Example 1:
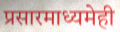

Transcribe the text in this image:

प्रसारमाध्यमेही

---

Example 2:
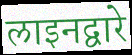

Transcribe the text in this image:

लाइनद्वारे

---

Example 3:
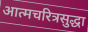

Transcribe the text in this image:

आत्मचरित्रसुद्धा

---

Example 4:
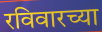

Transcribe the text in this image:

रविवारच्या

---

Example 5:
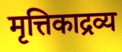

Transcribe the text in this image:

मृत्तिकाद्रव्य